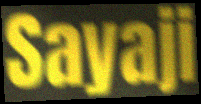
Sayaji